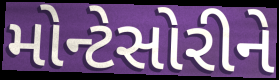
મોન્ટેસોરીને